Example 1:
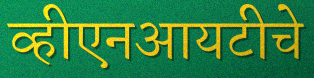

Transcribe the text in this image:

व्हीएनआयटीचे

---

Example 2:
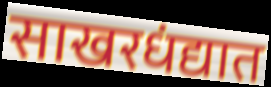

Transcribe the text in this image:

साखरधंद्यात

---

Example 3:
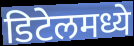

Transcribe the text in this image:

डिटेलमध्ये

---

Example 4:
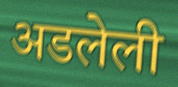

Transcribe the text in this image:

अडलेली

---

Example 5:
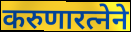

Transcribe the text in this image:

करुणारत्नेने